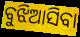
ବୁଝିଆସିବା